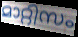
മാറ്റിസം